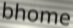
bhome